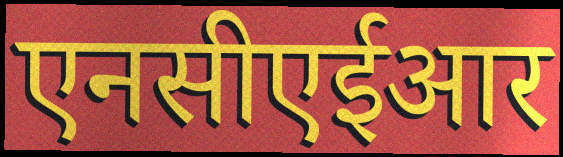
एनसीएईआर